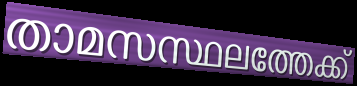
താമസസ്ഥലത്തേക്ക്